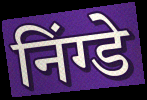
निंग्डे